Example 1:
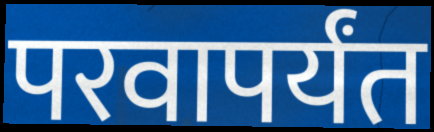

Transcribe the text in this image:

परवापर्यंत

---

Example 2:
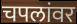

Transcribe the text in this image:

चपलांवर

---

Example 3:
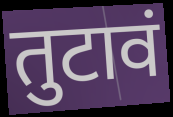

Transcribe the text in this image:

तुटावं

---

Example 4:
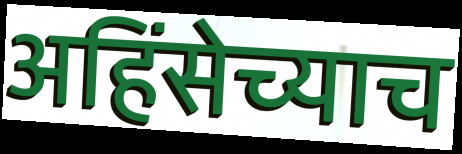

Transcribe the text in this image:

अहिंसेच्याच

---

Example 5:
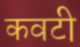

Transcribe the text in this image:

कवटी